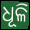
ଧୂଳି